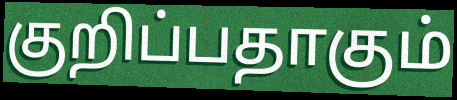
குறிப்பதாகும்